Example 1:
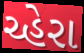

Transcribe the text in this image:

ચ્હેરા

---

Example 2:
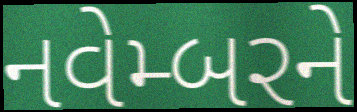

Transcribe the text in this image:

નવેમ્બરને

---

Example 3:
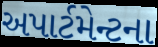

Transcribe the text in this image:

અપાર્ટમેન્ટના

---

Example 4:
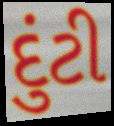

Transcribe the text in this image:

દુંટી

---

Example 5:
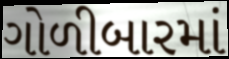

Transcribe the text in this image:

ગોળીબારમાં